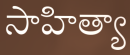
సాహిత్యా